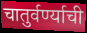
चातुर्वर्ण्याची